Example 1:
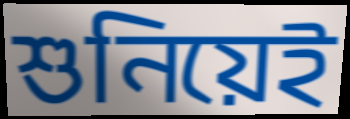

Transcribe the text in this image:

শুনিয়েই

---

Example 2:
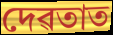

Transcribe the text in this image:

দেৱতাত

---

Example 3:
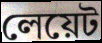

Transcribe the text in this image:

লেয়েট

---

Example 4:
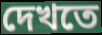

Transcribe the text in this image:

দেখতে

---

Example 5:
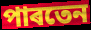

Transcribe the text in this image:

পাৰতেন